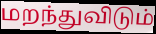
மறந்துவிடும்